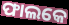
ଫାଲକେ